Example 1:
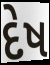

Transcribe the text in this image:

દેષ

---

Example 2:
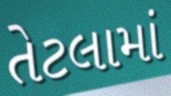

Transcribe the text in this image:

તેટલામાં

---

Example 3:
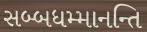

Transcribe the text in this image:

સબ્બધમ્માનન્તિ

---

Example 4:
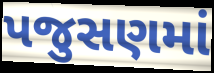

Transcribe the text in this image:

પજુસણમાં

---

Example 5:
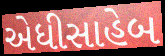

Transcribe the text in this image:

એધીસાહેબ